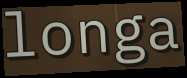
longa